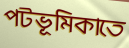
পটভূমিকাতে